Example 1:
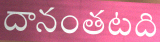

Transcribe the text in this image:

దానంతటది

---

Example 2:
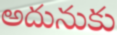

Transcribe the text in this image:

అదునుకు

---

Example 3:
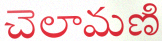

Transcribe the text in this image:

చెలామణి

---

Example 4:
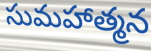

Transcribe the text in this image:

సుమహాత్మన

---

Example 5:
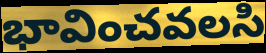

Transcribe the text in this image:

భావించవలసి